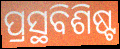
ପ୍ରସ୍ଥବିଶିଷ୍ଟ